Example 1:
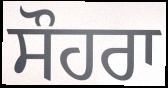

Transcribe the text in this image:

ਸੌਹਰਾ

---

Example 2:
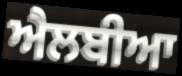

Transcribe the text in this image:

ਐਲਬੀਆ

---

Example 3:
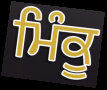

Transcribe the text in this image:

ਮਿੰਕੂ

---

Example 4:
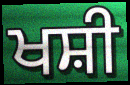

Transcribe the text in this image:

ਖਸ਼ੀ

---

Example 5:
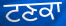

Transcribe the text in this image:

ਟਣਕਾ